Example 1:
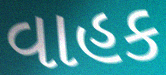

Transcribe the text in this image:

વાહક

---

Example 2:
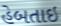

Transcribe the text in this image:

હેબતાઇ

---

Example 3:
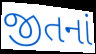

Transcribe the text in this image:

જીતનાં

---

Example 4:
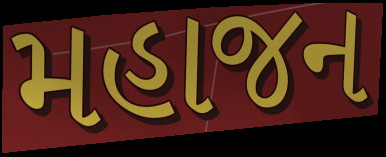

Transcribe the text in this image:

મહાજન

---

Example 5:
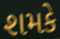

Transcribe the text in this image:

શમકે